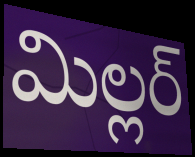
మిల్లర్